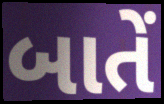
બાતેં